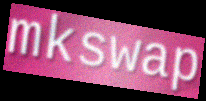
mkswap